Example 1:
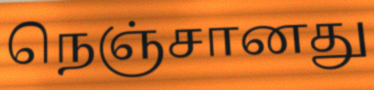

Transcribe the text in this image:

நெஞ்சானது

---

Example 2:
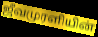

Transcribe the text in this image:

ஜீவமுரளியின்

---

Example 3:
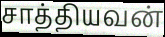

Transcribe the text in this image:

சாத்தியவன்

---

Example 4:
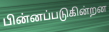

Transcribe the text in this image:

பின்னப்படுகின்றன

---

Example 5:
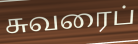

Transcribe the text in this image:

சுவரைப்